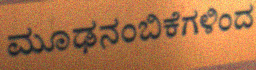
ಮೂಢನಂಬಿಕೆಗಳಿಂದ